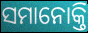
ସମାନୋକ୍ତି